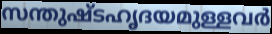
സന്തുഷ്ടഹൃദയമുള്ളവർ